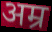
अम्र